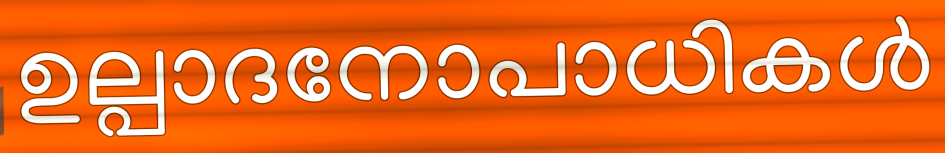
ഉല്പാദനോപാധികൾ